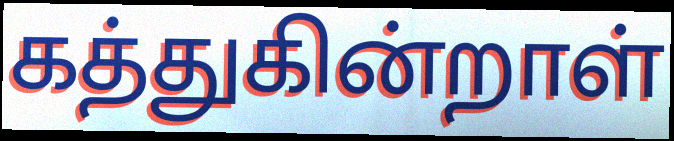
கத்துகின்றாள்